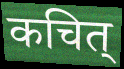
कचित्